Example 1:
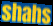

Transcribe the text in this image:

shahs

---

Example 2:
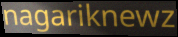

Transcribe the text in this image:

nagariknewz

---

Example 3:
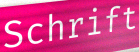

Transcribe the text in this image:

Schrift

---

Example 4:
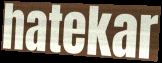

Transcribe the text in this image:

hatekar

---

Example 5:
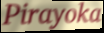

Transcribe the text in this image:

Pirayoka